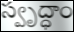
స్వృద్ధాం